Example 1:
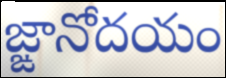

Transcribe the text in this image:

జ్ఙానోదయం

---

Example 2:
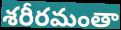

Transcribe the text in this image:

శరీరమంతా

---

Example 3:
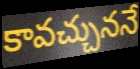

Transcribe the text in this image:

కావచ్చుననే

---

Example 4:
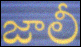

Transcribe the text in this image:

జాలీ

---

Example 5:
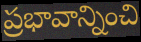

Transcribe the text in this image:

ప్రభావాన్నించి